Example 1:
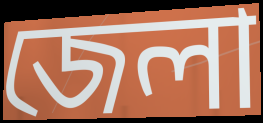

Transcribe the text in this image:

জেলা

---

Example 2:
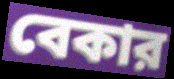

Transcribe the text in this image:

বেকার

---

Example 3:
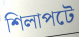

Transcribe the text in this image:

শিলাপটে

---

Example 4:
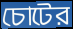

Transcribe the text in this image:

চোটের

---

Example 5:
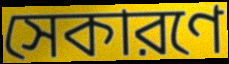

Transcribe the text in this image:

সেকারণে